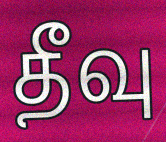
தீவு